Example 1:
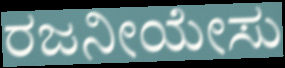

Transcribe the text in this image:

ರಜನೀಯೇಸು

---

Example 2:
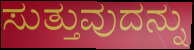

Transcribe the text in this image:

ಸುತ್ತುವುದನ್ನು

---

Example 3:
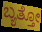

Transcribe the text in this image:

ಬ್ಯತ್ತೋ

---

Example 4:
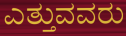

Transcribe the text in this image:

ಎತ್ತುವವರು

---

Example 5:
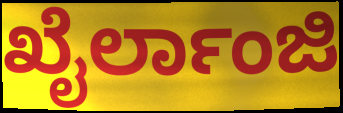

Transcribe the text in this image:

ಖೈರ್ಲಾಂಜಿ